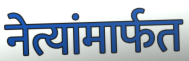
नेत्यांमार्फत